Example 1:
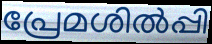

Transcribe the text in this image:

പ്രേമശിൽപ്പി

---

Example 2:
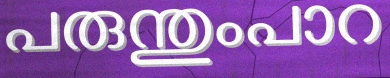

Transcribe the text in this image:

പരുന്തുംപാറ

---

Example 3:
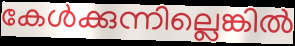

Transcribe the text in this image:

കേൾക്കുന്നില്ലെങ്കിൽ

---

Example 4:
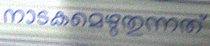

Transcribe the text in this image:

നാടകമെഴുതുന്നത്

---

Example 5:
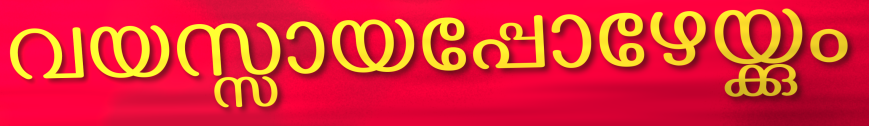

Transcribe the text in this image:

വയസ്സായപ്പോഴേയ്ക്കും